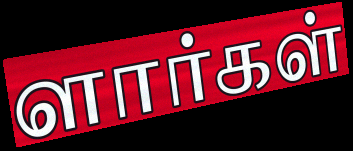
ளார்கள்